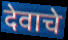
देवाचे